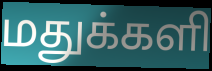
மதுக்களி